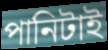
পানিটাই